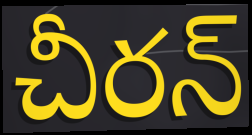
చీరన్